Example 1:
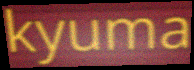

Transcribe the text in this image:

kyuma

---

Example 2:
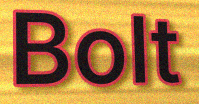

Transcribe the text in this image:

Bolt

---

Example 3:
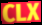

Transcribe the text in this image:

CLX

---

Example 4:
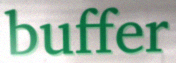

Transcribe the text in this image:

buffer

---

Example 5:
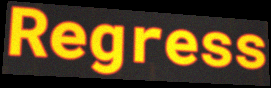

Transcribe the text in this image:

Regress